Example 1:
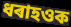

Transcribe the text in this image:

ধৰাহওক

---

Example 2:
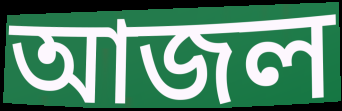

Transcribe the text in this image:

আজল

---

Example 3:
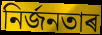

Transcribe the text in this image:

নিৰ্জনতাৰ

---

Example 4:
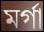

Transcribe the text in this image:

মৰ্গা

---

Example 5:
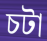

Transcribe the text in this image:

চটা